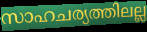
സാഹചര്യത്തിലല്ല